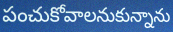
పంచుకోవాలనుకున్నాను